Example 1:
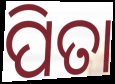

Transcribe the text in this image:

ପିତା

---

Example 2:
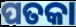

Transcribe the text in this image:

ପତକା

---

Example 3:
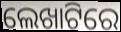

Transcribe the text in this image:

ଲେଖାଟିରେ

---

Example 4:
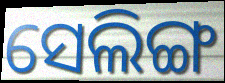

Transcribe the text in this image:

ସେଲିଙ୍ଗ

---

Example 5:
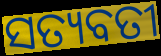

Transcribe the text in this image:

ସତ୍ୟବତୀ